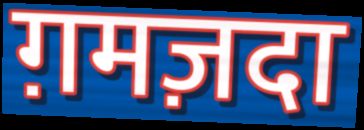
ग़मज़दा